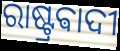
ରାଷ୍ଟ୍ରଵାଦୀ